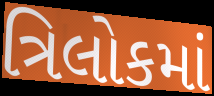
ત્રિલોકમાં